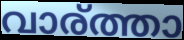
വാര്ത്താ